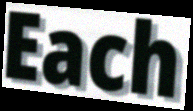
Each